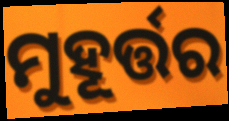
ମୁହୂର୍ତ୍ତର